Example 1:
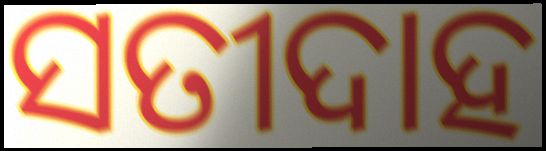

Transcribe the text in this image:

ସତୀଦାହ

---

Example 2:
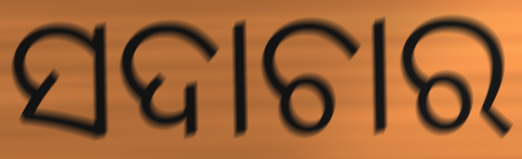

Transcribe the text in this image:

ସଦାଚାର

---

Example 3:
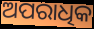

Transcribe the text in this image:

ଅପରାଧିକ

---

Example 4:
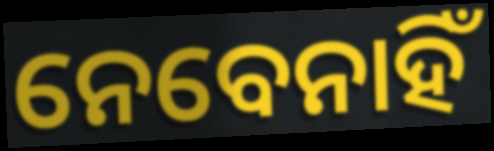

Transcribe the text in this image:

ନେବେନାହିଁ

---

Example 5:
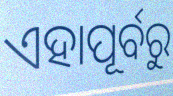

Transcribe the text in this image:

ଏହାପୂର୍ବରୁ